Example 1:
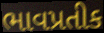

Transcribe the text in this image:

ભાવપ્રતીક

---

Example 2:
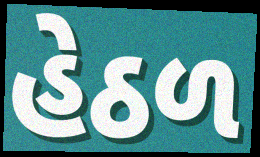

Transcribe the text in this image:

હેઠળ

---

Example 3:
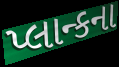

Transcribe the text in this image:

પ્લાન્કના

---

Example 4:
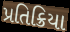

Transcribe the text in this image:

પ્રતિક્રિયા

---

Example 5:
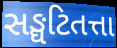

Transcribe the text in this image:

સઙ્ઘટિતત્તા